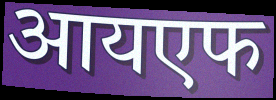
आयएफ